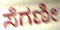
ಸೆಗಣೀ